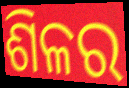
ଶିଳର